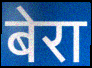
बेरा